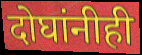
दोघांनीही